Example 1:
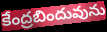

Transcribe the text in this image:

కేంద్రబిందువును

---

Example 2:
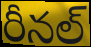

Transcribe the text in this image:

రీనల్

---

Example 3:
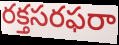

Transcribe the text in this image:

రక్తసరఫరా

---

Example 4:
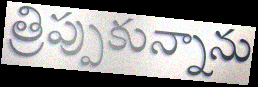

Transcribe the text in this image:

త్రిప్పుకున్నాను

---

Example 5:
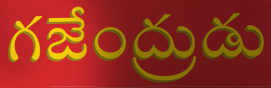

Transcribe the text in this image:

గజేంద్రుడు